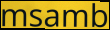
msamb